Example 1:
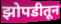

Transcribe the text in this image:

झोपडीतून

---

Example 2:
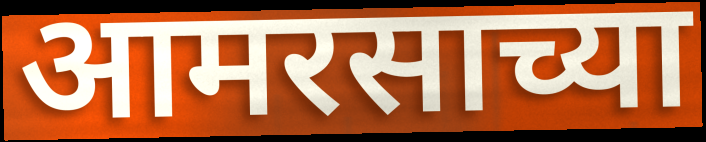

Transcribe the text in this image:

आमरसाच्या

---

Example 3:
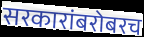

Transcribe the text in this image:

सरकारांबरोबरच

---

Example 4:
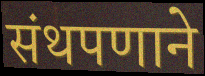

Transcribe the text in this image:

संथपणाने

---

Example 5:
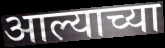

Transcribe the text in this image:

आल्याच्या